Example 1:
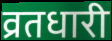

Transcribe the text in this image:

व्रतधारी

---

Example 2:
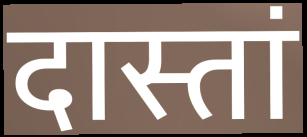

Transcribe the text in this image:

दास्तां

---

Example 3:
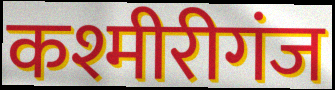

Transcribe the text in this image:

कश्मीरीगंज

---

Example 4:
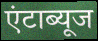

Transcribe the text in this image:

एंटाब्यूज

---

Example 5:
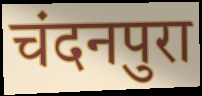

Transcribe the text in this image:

चंदनपुरा